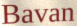
Bavan